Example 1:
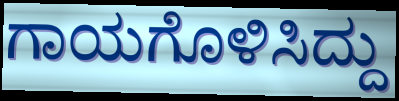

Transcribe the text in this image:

ಗಾಯಗೊಳಿಸಿದ್ದು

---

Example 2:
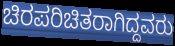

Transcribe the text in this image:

ಚಿರಪರಿಚಿತರಾಗಿದ್ದವರು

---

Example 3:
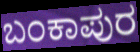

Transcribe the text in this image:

ಬಂಕಾಪುರ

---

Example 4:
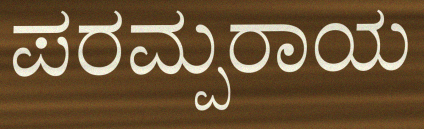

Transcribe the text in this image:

ಪರಮ್ಪರಾಯ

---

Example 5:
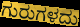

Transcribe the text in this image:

ಗುರುಗಳದು